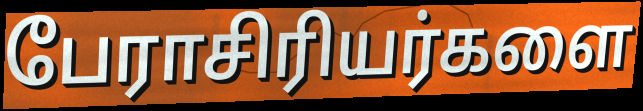
பேராசிரியர்களை